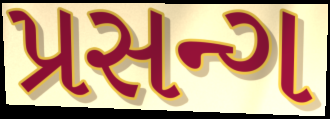
પ્રસન્ગ